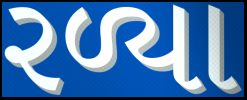
રળ્યા